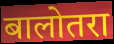
बालोतरा